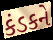
કંડકને